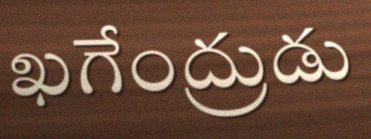
ఖగేంద్రుడు